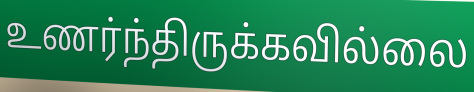
உணர்ந்திருக்கவில்லை